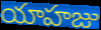
యాహజు